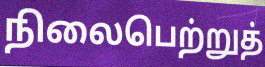
நிலைபெற்றுத்